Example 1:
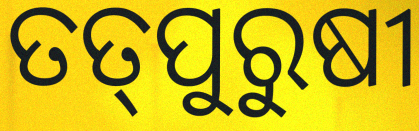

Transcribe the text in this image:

ତତ୍‌ପୁରୁଷୀ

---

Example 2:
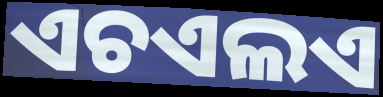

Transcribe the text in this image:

ଏଚଏଲଏ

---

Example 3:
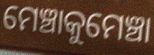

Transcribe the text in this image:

ମେଞ୍ଚାକୁମେଞ୍ଚା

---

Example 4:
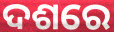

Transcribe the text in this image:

ଦଶରେ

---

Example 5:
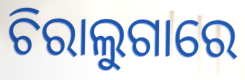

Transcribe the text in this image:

ଚିରାଲୁଗାରେ